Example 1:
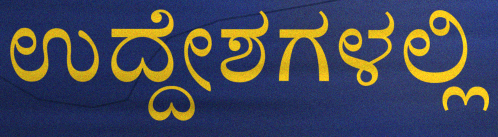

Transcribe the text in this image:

ಉದ್ದೇಶಗಳಲ್ಲಿ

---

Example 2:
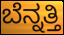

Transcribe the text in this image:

ಬೆನ್ನತ್ತಿ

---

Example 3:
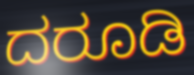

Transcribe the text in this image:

ದರೂಡಿ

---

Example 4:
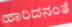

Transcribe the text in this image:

ಹಾರಿದನಂತೆ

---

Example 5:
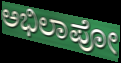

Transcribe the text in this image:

ಅಭಿಲಾಪೋ